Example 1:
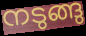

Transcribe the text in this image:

നടുങ്ങു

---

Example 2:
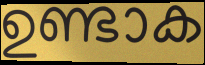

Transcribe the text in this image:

ഉണ്ടാക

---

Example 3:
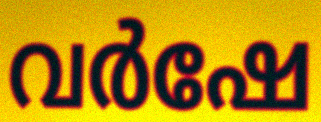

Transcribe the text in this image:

വർഷേ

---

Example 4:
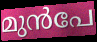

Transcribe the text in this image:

മുൻപേ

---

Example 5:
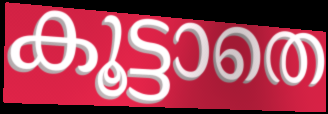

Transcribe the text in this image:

കൂട്ടാതെ